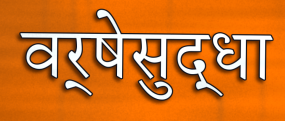
वर्षेसुद्धा